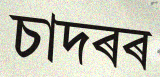
চাদৰৰ